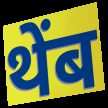
थेंब